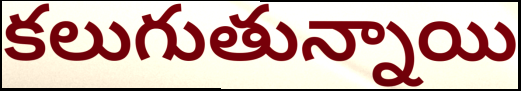
కలుగుతున్నాయి